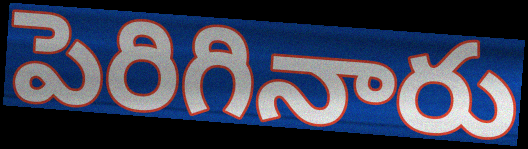
పెరిగినారు